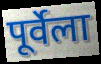
पूर्वेला